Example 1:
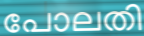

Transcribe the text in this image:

പോലതി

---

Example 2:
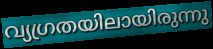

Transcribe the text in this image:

വ്യഗ്രതയിലായിരുന്നു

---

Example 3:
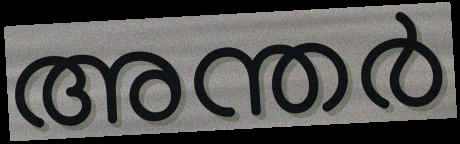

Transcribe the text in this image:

അന്തർ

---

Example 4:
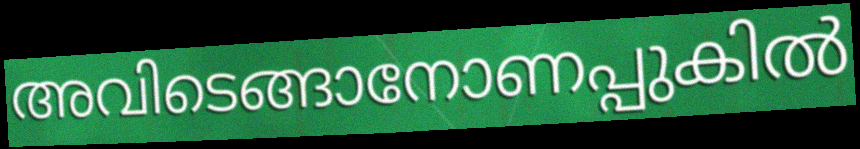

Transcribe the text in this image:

അവിടെങ്ങാനോണപ്പുകിൽ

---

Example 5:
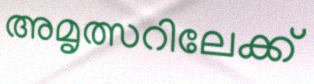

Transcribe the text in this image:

അമൃത്സറിലേക്ക്